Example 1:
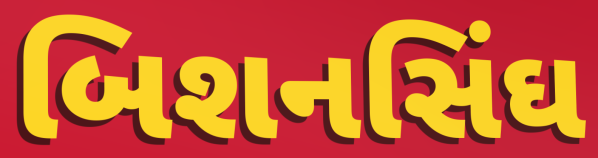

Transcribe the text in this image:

બિશનસિંઘ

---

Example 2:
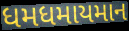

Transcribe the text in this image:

ધમધમાયમાન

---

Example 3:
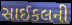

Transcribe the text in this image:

સાઈકલની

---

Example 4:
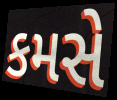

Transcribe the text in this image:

કમસે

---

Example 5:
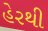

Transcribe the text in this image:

હેરથી